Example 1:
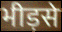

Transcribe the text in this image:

भीड़से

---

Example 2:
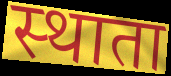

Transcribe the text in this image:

स्थाता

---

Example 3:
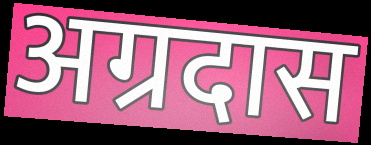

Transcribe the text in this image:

अग्रदास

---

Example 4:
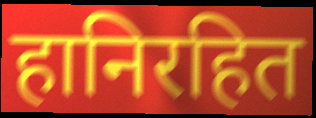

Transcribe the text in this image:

हानिरहित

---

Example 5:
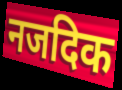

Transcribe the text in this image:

नजदिक